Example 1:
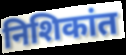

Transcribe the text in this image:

निशिकांत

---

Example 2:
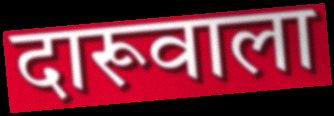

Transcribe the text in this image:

दारूवाला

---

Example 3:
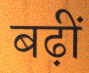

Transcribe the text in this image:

बढ़ीं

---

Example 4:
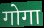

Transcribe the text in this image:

गोगा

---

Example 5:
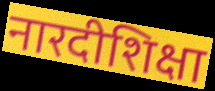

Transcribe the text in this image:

नारदीशिक्षा